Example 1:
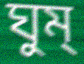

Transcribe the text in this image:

ঘুম্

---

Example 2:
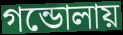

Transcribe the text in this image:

গন্ডোলায়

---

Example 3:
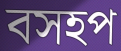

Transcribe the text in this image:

বসহপ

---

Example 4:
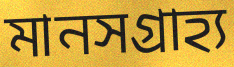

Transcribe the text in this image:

মানসগ্রাহ্য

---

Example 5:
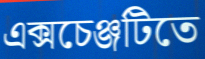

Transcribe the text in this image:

এক্সচেঞ্জটিতে